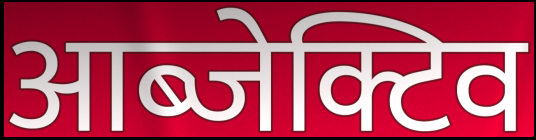
आब्जेक्टिव